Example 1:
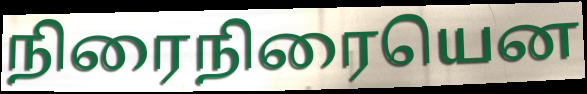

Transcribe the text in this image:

நிரைநிரையென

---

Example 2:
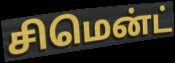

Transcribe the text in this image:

சிமென்ட்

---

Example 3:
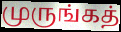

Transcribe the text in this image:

முருங்கத்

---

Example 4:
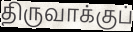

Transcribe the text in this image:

திருவாக்குப்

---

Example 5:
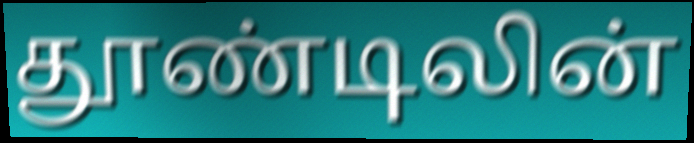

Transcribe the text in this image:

தூண்டிலின்